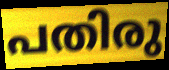
പതിരു